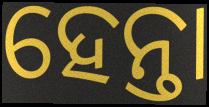
ହେନ୍ତା